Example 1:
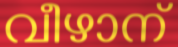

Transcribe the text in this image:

വീഴാന്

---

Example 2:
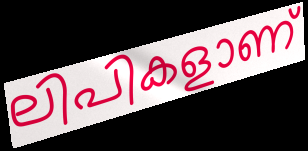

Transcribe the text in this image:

ലിപികളാണ്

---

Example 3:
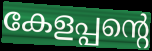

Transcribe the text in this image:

കേളപ്പന്റെ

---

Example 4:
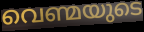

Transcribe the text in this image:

വെണ്മയുടെ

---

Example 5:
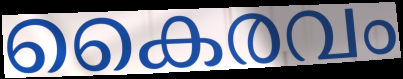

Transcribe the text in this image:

കൈരവം